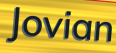
Jovian